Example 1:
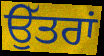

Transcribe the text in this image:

ਉੱਤਰਾਂ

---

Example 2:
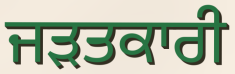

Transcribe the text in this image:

ਜੜਤਕਾਰੀ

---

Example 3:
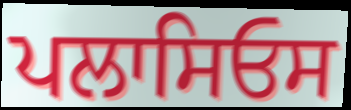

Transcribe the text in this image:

ਪਲਾਸਿਓਸ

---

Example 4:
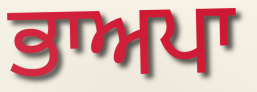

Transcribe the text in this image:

ਭਾਅਪਾ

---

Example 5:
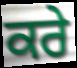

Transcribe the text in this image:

ਕਰੇ